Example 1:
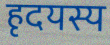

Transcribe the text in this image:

हृदयस्य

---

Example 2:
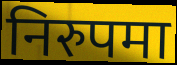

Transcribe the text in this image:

निरुपमा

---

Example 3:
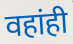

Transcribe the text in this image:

वहांही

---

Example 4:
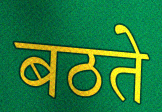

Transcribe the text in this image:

बठते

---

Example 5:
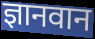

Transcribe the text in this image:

ज्ञानवान